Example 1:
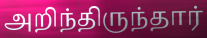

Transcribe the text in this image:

அறிந்திருந்தார்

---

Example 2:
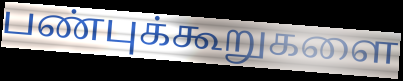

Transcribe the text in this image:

பண்புக்கூறுகளை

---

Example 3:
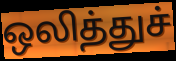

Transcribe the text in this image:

ஒலித்துச்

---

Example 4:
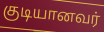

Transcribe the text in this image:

குடியானவர்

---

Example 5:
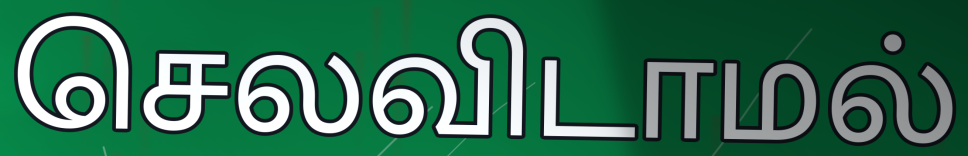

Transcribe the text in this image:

செலவிடாமல்